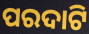
ପରଦାଟି